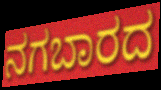
ನಗಬಾರದ